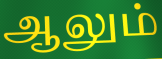
ஆலும்